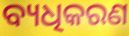
ବ୍ୟଧିକରଣ